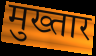
मुख्तार